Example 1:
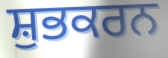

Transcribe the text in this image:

ਸ਼ੁਭਕਰਨ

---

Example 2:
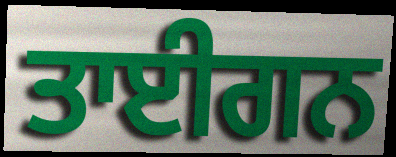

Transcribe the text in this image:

ਤਾਈਗਨ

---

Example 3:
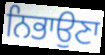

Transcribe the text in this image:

ਨਿਭਾਉਣਾ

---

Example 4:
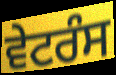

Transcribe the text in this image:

ਵੇਟਰੰਸ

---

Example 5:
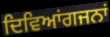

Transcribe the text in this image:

ਦਿਵਿਆਂਗਜਨਾਂ